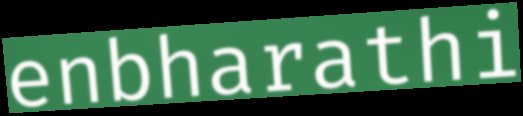
enbharathi